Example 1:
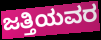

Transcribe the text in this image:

ಜತ್ತಿಯವರ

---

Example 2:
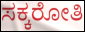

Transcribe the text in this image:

ಸಕ್ಕರೋತಿ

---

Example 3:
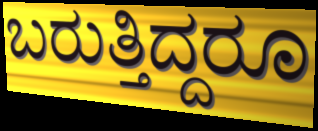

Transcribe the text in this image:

ಬರುತ್ತಿದ್ದರೂ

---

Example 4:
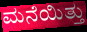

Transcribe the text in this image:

ಮನೆಯಿತ್ತು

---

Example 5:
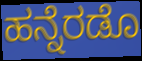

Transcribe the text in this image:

ಹನ್ನೆರಡೊ